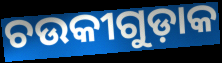
ଚଉକୀଗୁଡ଼ାକ